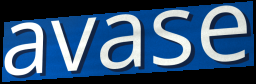
avase